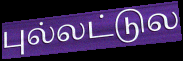
புல்லட்டுல